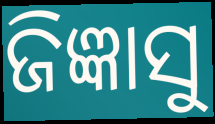
ଜିଜ୍ଞାସୁ